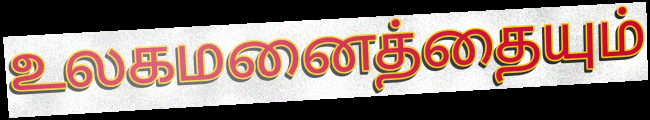
உலகமனைத்தையும்